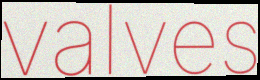
valves